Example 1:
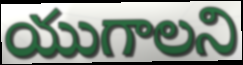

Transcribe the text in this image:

యుగాలని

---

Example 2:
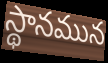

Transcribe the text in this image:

స్థానమున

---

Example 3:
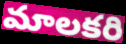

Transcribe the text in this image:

మాలకరి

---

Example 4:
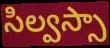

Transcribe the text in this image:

సిల్వస్సా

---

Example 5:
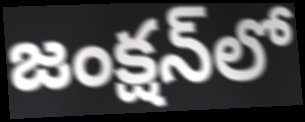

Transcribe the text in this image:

జంక్షన్‌లో